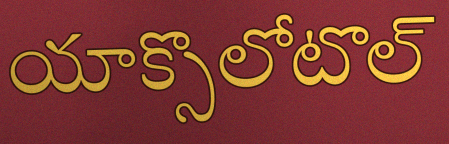
యాక్సొలోటొల్